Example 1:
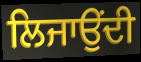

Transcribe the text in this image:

ਲਿਜਾਉਂਦੀ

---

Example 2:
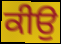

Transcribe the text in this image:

ਕੀਉ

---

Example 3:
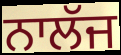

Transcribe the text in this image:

ਨਾਲੱਜ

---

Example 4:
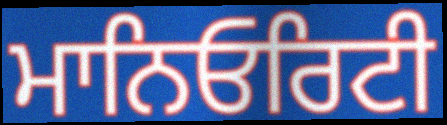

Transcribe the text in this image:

ਮਾਨਿਓਰਿਟੀ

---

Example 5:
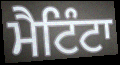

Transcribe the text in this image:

ਮੈਟਿੰਟਾ